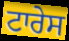
ਟਾਰੇਸ